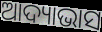
ଆଦ୍ୟାଭାସ